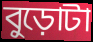
বুড়োটা